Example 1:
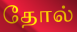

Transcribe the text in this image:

தோல்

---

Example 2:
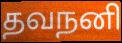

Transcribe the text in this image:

தவநனி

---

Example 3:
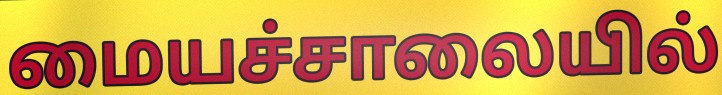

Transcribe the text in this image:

மையச்சாலையில்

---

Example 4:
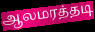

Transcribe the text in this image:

ஆலமரத்தடி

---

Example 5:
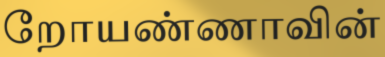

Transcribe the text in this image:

றோயண்ணாவின்